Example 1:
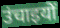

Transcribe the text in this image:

उंचाइयों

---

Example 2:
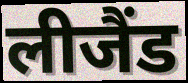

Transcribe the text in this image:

लीजैंड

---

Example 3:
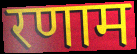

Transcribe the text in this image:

रणाम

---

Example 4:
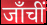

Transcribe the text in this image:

जाँचीं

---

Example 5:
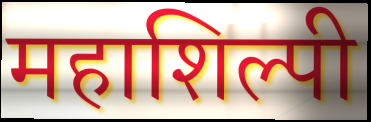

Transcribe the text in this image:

महाशिल्पी